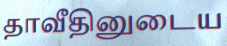
தாவீதினுடைய